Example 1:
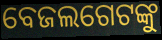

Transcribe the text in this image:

ବେଜଲଗେଟଙ୍କୁ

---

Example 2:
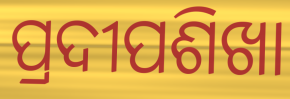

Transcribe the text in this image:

ପ୍ରଦୀପଶିଖା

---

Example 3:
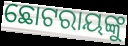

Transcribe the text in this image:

ଛୋଟରାୟଙ୍କୁ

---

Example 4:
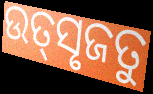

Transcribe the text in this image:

ଉତ୍‌ସୃଜତୁ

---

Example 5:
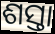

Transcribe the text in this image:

ଶସ୍ତା